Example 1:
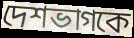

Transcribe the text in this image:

দেশভাগকে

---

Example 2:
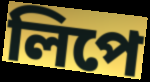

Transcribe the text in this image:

লিপে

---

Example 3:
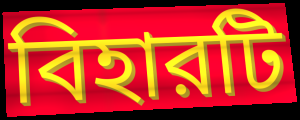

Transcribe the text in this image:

বিহারটি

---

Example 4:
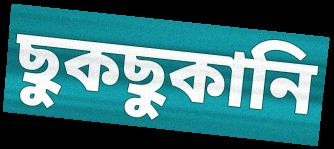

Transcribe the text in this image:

ছুকছুকানি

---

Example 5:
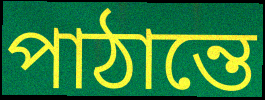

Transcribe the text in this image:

পাঠান্তে